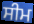
ਸੀਮ